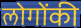
लोगोंकी